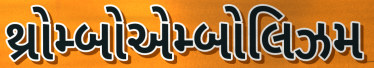
થ્રોમ્બોએમ્બોલિઝમ